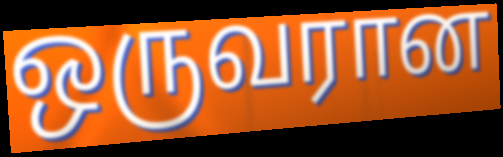
ஒருவரான